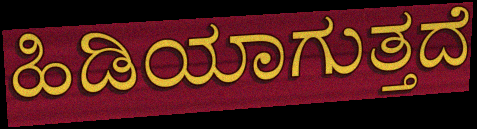
ಹಿಡಿಯಾಗುತ್ತದೆ